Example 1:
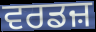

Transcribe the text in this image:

ਵਰਡਜ਼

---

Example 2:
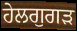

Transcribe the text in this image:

ਹੇਲਗੁਗੜ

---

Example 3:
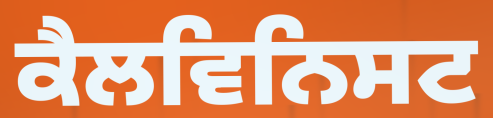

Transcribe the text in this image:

ਕੈਲਵਿਨਿਸਟ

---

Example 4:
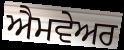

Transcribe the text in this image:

ਐਮਵੇਅਰ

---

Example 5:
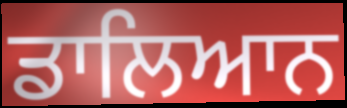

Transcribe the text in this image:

ਡਾਲਿਆਨ